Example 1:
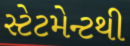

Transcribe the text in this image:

સ્ટેટમેન્ટથી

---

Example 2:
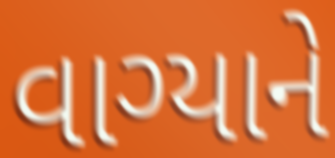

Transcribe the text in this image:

વાગ્યાને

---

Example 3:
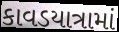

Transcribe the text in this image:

કાવડયાત્રામાં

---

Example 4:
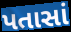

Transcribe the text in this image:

પતાસાં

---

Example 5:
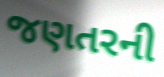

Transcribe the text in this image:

જણતરની